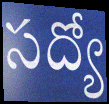
సద్యో